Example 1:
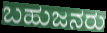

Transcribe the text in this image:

ಬಹುಜನರು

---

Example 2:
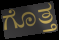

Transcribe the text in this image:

ಗೊತ್ತ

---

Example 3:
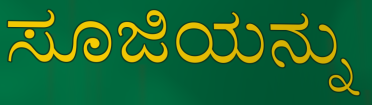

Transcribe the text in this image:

ಸೂಜಿಯನ್ನು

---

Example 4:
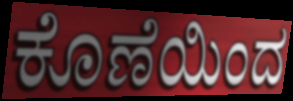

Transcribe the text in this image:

ಕೊಣೆಯಿಂದ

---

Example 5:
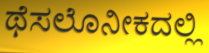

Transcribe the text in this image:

ಥೆಸಲೊನೀಕದಲ್ಲಿ